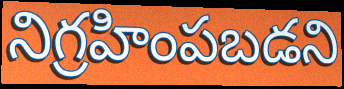
నిగ్రహింపబడని